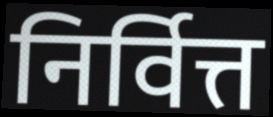
निर्वित्त